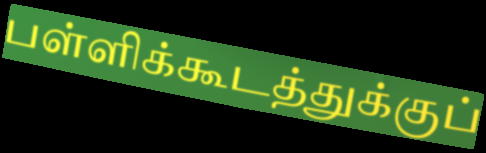
பள்ளிக்கூடத்துக்குப்